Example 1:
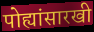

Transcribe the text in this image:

पोह्यांसारखी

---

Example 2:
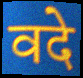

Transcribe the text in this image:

वदे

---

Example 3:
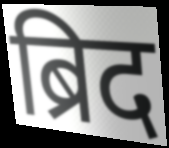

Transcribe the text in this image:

ब्रिद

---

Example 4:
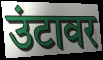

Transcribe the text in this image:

उंटावर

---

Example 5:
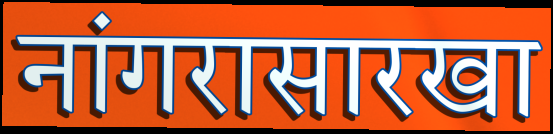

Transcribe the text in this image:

नांगरासारखा